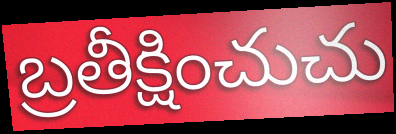
బ్రతీక్షించుచు